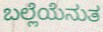
ಬಲ್ಲೆಯೆನುತ